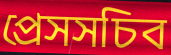
প্রেসসচিব